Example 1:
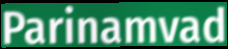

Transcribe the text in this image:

Parinamvad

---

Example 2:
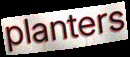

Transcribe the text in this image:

planters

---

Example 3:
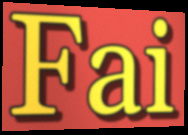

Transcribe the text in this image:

Fai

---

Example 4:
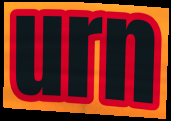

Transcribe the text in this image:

urn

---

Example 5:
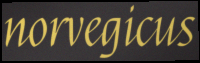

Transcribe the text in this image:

norvegicus